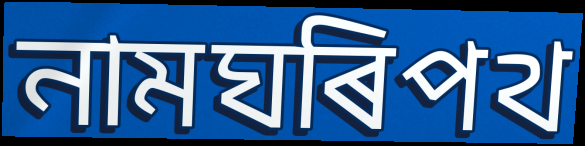
নামঘৰিপথ